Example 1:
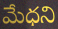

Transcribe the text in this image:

మేధని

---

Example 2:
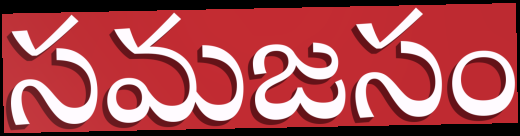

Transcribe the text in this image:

సమజసం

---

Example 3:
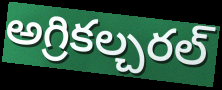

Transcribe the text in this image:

అగ్రికల్చరల్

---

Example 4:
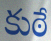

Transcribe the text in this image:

కుఠే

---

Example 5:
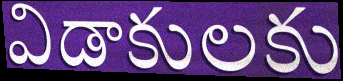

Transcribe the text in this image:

విడాకులకు